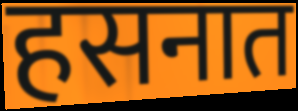
हसनात